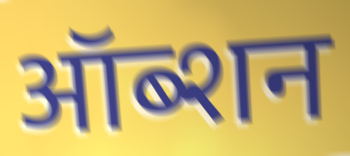
ऑब्शन